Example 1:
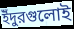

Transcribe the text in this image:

ইঁদুরগুলোই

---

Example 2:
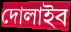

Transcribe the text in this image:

দোলাইব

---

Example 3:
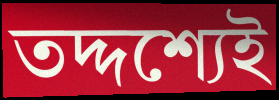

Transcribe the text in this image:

তদ্দশ্যেই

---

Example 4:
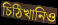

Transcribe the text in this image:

চিঠিখানিও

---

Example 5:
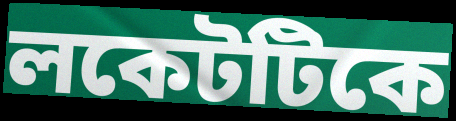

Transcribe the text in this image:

লকেটটিকে